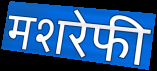
मशरेफी